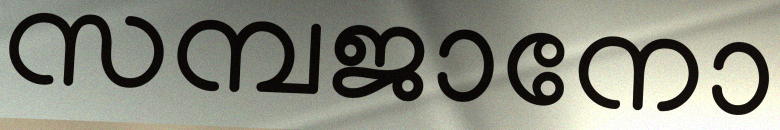
സമ്പജാനോ